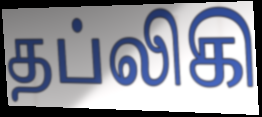
தப்லிகி